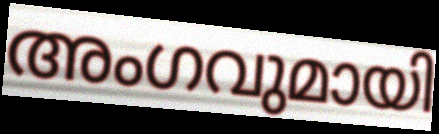
അംഗവുമായി